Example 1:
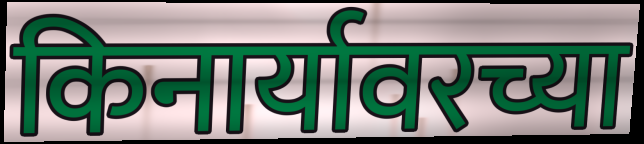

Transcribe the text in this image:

किनार्यावरच्या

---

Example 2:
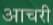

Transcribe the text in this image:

आचरी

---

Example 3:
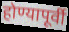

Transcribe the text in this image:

होण्यापूर्वी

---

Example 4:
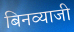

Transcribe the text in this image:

बिनव्याजी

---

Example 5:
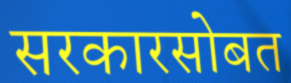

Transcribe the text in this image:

सरकारसोबत